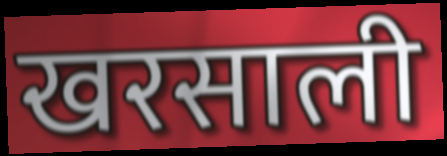
खरसाली